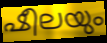
ഷീലയും